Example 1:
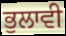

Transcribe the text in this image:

ਭੁਲਾਵੀ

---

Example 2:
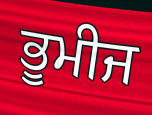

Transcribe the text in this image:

ਭੂਮੀਜ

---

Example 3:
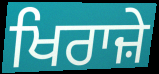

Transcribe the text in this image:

ਖਿਰਾਜ਼ੇ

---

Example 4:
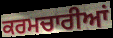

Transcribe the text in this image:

ਕਰਮਚਾਰੀਆਂ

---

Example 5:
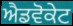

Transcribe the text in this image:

ਐਡਵੋਕੇਟ